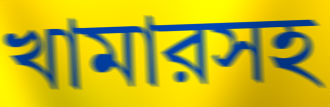
খামারসহ